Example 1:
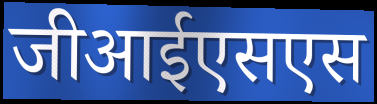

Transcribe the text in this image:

जीआईएसएस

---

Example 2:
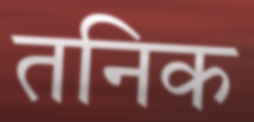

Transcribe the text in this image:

तनिक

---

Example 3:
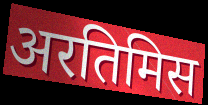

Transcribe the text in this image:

अरतिमिस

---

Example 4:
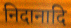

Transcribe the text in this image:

निदानादि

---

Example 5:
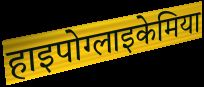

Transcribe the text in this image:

हाइपोग्लाइकेमिया